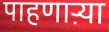
पाहणाऱ्‍या